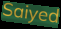
Saiyed